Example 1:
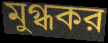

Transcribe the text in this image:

মুগ্ধকর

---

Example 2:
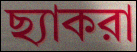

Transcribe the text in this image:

ছ্যাকরা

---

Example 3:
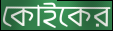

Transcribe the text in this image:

কোইকের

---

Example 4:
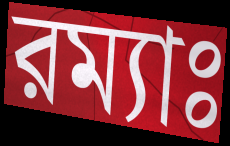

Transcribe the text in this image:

রম্যাঃ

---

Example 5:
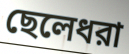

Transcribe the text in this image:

ছেলেধরা